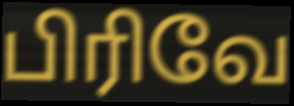
பிரிவே